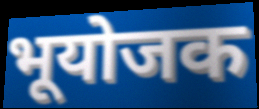
भूयोजक